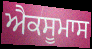
ਐਕਸੂਮਾਸ